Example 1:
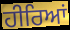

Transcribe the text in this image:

ਹੀਰਿਆਂ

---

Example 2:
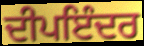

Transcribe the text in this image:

ਦੀਪਇੰਦਰ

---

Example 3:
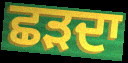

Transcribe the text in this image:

ਛੜਦਾ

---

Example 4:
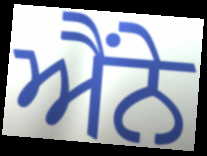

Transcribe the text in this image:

ਐਂਨੇ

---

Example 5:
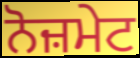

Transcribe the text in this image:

ਨੋਜ਼ਮੇਟ